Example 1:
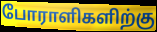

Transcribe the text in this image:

போராளிகளிற்கு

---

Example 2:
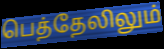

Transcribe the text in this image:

பெத்தேலிலும்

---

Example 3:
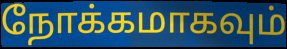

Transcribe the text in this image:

நோக்கமாகவும்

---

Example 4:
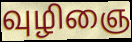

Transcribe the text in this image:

வுழிஞை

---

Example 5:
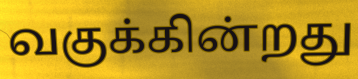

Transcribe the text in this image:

வகுக்கின்றது